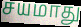
சயமாது